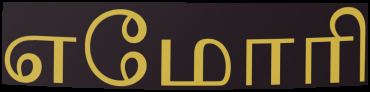
எமோரி